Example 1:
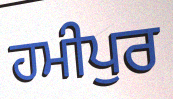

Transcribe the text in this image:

ਹਮੀਪੁਰ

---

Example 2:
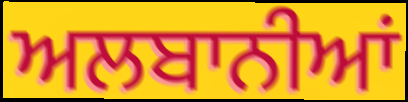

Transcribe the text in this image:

ਅਲਬਾਨੀਆਂ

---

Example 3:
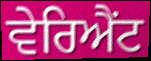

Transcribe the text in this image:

ਵੇਰਿਐਂਟ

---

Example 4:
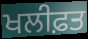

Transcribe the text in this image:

ਖਲੀਫ਼ਤ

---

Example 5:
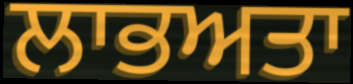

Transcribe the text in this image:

ਲਾਭਅਤਾ